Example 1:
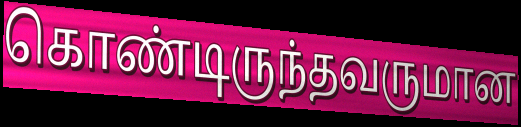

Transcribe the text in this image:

கொண்டிருந்தவருமான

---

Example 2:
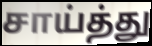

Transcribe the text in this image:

சாய்த்து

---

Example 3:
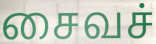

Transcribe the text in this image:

சைவச்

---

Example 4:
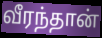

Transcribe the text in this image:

வீரந்தான்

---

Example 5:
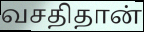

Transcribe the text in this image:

வசதிதான்